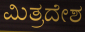
ಮಿತ್ರದೇಶ